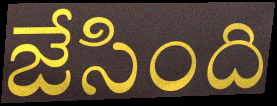
జేసింది